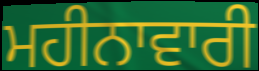
ਮਹੀਨਾਵਾਰੀ